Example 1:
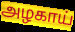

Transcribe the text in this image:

அழகாய்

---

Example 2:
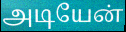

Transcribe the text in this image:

அடியேன்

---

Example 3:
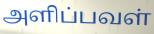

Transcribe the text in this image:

அளிப்பவள்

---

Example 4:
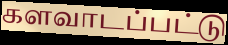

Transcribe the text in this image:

களவாடப்பட்டு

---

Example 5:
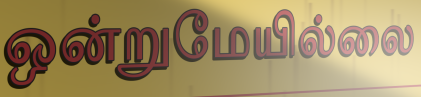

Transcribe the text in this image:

ஒன்றுமேயில்லை